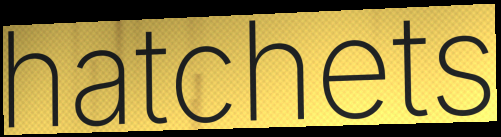
hatchets